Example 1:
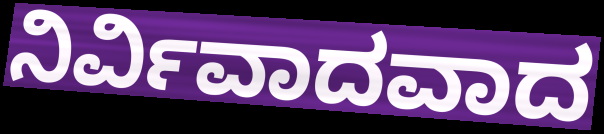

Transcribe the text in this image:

ನಿರ್ವಿವಾದವಾದ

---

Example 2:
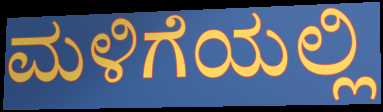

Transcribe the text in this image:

ಮಳಿಗೆಯಲ್ಲಿ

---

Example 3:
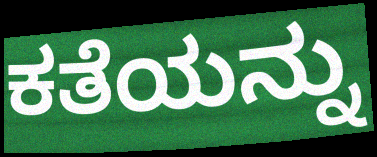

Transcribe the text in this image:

ಕತೆಯನ್ನು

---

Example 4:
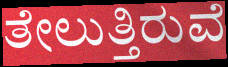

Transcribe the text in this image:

ತೇಲುತ್ತಿರುವೆ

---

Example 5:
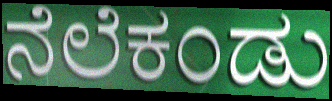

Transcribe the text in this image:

ನೆಲೆಕಂಡು